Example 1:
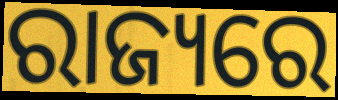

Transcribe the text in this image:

ରାଜ୍ଯରେ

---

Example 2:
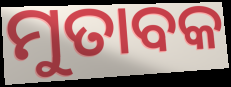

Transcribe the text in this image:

ମୁତାବକ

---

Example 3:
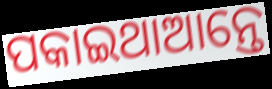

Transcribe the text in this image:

ପକାଇଥାଆନ୍ତେ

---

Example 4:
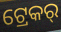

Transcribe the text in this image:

ଟ୍ରେକର୍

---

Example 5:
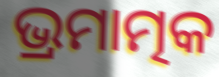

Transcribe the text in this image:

ଭ୍ରମାତ୍ମକ